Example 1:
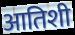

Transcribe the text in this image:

आतिशी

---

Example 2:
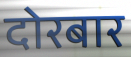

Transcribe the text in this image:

दोरबार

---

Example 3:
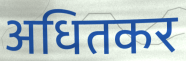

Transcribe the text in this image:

अधितकर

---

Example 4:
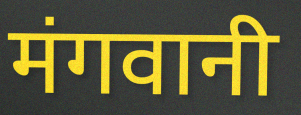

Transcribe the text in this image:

मंगवानी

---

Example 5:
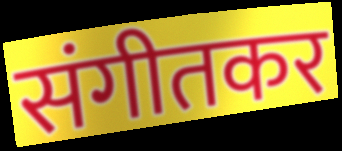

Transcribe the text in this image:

संगीतकर